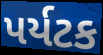
પર્યટક